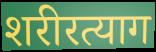
शरीरत्याग